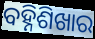
ବହ୍ନିଶିଖାର